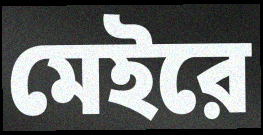
মেইরে